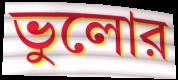
ভুলোর